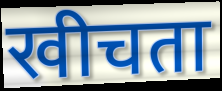
खीचता